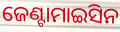
ଜେଣ୍ଟାମାଇସିନ